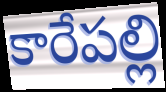
కారేపల్లి